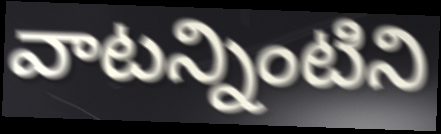
వాటన్నింటిని